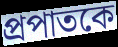
প্রপাতকে